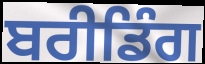
ਬਰੀਡਿੰਗ